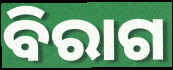
ବିରାଗ